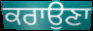
ਕਰਾਉਣਾ